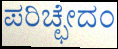
ಪರಿಚ್ಛೇದಂ